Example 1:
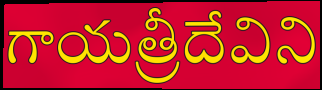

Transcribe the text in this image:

గాయత్రీదేవిని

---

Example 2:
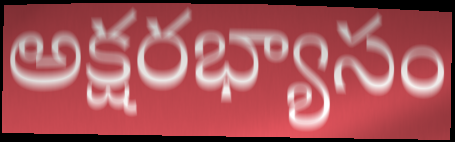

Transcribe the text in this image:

అక్షరభ్యాసం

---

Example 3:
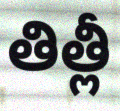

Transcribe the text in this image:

తిత్లీ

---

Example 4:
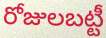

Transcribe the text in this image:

రోజులబట్టీ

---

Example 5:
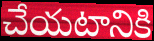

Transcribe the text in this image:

చేయటానికి